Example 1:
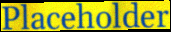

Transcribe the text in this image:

Placeholder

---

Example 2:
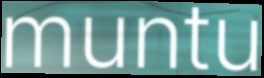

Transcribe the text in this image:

muntu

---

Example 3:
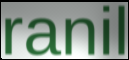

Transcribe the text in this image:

ranil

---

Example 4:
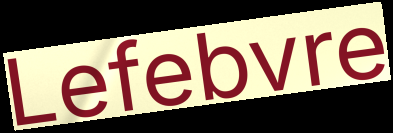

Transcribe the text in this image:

Lefebvre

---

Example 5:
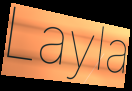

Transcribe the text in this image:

Layla